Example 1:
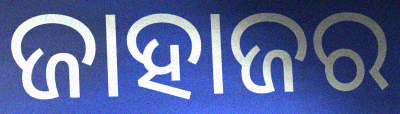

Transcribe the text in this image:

ଜାହାଜର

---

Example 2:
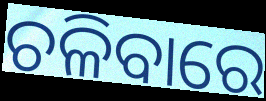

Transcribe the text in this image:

ଚଳିବାରେ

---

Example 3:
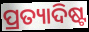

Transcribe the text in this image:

ପ୍ରତ୍ୟାଦିଷ୍ଟ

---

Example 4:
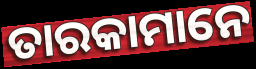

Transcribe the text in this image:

ତାରକାମାନେ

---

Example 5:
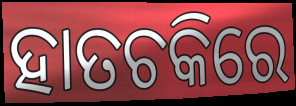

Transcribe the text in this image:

ହାତଚକିରେ